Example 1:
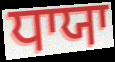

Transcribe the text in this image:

ਧਾਯਾ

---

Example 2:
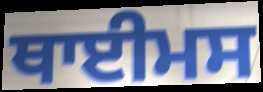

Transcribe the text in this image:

ਥਾਈਮਸ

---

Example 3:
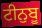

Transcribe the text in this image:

ਟੀਨੁਬੂ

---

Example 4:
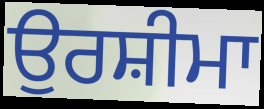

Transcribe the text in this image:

ਉਰਸ਼ੀਮਾ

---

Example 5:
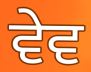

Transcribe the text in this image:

ਵੇਵ